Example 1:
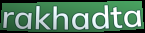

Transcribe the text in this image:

rakhadta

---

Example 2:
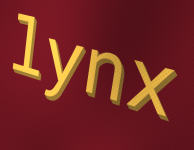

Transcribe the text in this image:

lynx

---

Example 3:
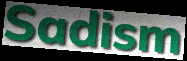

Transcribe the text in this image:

Sadism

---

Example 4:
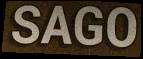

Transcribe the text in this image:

SAGO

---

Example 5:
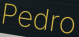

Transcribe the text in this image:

Pedro